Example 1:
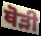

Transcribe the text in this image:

ਥੋੜੀ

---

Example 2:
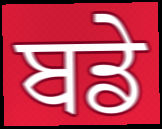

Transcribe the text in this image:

ਬਡੇ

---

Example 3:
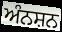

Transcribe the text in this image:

ਅੰਨਸ਼ਨ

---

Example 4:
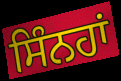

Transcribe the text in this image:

ਸਿੰਨਹਾਂ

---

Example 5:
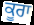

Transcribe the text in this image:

ਕੂਰਾ